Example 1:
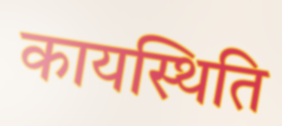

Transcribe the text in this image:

कायस्थिति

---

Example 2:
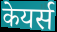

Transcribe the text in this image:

केयर्स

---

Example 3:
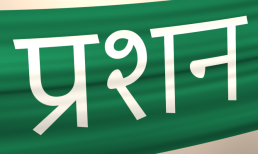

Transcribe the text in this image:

प्रशन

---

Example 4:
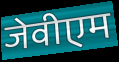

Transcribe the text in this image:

जेवीएम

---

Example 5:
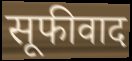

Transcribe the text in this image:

सूफीवाद